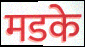
मडके